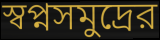
স্বপ্নসমুদ্রের